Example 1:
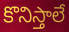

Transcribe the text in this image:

కొనిస్తాలే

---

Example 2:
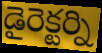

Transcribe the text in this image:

డైరెక్టర్ని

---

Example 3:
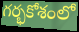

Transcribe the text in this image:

గర్భకోశంలో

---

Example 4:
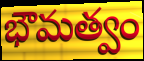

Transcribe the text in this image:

భౌమత్వం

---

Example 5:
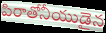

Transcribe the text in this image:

పిరాతోనీయుడైన